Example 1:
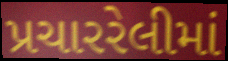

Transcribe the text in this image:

પ્રચારરેલીમાં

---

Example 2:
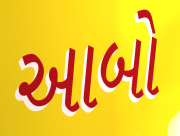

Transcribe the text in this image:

આબો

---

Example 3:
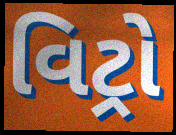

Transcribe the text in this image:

વિટ્રો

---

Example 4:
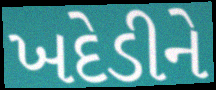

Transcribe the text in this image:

ખદેડીને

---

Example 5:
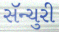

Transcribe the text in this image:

સૅન્ચુરી